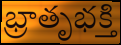
భ్రాతృభక్తి